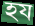
হয